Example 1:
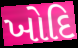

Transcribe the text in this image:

ખોદિ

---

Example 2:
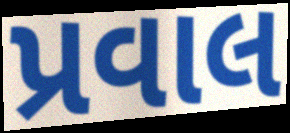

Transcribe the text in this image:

પ્રવાલ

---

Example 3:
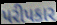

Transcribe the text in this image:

પરીપકાર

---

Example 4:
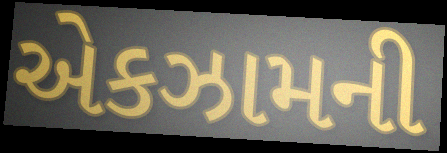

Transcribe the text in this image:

એકઝામની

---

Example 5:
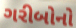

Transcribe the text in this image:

ગરીબોનો